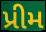
પ્રીમ